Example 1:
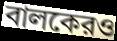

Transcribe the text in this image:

বালকেরও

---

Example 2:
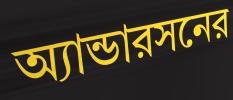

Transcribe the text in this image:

অ্যান্ডারসনের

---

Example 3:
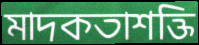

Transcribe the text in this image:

মাদকতাশক্তি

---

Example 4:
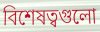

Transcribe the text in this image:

বিশেষত্বগুলো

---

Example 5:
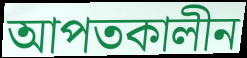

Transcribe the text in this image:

আপতকালীন